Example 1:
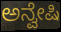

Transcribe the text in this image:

ಅನ್ವೇಷಿ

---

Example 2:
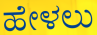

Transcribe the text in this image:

ಹೇಳಲು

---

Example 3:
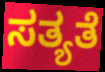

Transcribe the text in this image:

ಸತ್ಯತೆ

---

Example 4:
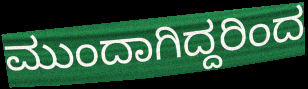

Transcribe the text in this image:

ಮುಂದಾಗಿದ್ದರಿಂದ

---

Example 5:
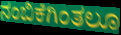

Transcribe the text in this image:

ನಂಬಿಕೆಗಿಂತಲೂ